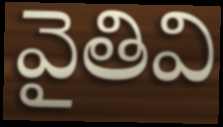
వైతివి